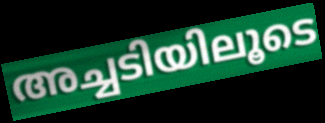
അച്ചടിയിലൂടെ